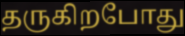
தருகிறபோது